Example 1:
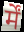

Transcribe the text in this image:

र्में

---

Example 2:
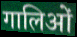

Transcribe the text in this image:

गालिओं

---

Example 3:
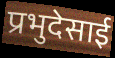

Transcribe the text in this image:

प्रभुदेसाई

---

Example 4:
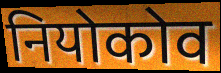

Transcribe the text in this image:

नियोकोव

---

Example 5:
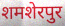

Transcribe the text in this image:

शमशेरपुर